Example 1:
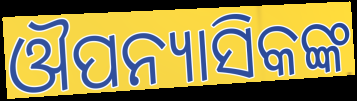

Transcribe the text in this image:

ଔପନ୍ୟାସିକଙ୍କ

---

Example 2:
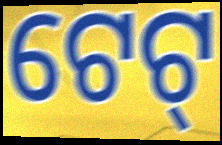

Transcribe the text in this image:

ଟେଟ୍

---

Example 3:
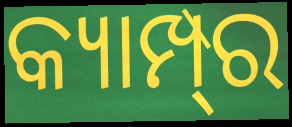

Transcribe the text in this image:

କ୍ୟାମ୍ପ୍‍ର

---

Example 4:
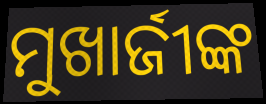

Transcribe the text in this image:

ମୁଖାର୍ଜୀଙ୍କ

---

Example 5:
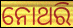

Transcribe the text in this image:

ନୋଥରି